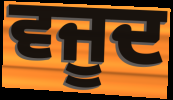
ਵਜੂਦ